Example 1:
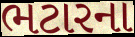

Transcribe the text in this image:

ભટારના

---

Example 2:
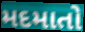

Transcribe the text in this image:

મદમાતો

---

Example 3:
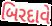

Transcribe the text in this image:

બિરદાવે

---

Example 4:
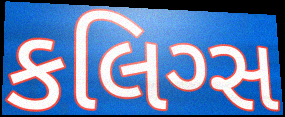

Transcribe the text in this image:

કલિગ્સ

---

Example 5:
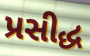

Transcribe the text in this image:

પ્રસીદ્ધ